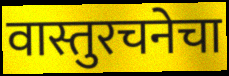
वास्तुरचनेचा